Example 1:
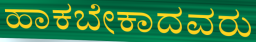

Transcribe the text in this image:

ಹಾಕಬೇಕಾದವರು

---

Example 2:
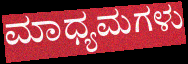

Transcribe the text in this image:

ಮಾಧ್ಯಮಗಳು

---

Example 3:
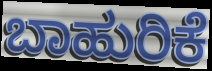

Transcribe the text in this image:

ಬಾಹುರಿಕೆ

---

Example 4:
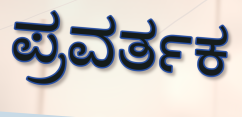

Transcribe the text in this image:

ಪ್ರವರ್ತಕ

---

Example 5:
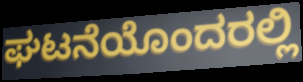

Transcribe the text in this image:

ಘಟನೆಯೊಂದರಲ್ಲಿ